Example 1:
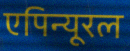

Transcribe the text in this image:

एपिन्यूरल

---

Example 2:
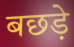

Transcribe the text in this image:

बछड़े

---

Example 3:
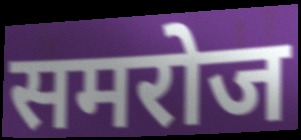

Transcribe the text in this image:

समरोज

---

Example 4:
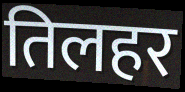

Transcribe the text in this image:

तिलहर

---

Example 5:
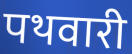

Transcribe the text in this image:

पथवारी